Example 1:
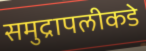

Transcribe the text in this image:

समुद्रापलीकडे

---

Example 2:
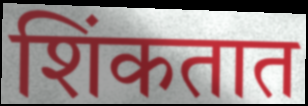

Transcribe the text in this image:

शिंकतात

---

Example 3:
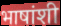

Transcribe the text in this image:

भाषांशी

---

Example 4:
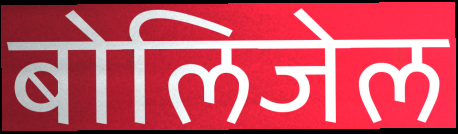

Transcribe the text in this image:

बोलिजेल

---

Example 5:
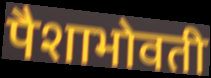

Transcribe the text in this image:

पैशाभोवती